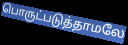
பொருட்படுத்தாமலே